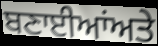
ਬਣਾਈਆਂਅਤੇ